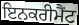
ਇਨਕਰੀਮੈਂਟ